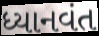
ધ્યાનવંત